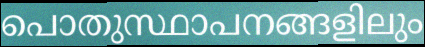
പൊതുസ്ഥാപനങ്ങളിലും